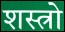
शस्त्रो